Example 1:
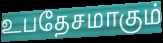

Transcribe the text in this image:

உபதேசமாகும்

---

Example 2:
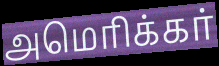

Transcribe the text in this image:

அமெரிக்கர்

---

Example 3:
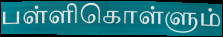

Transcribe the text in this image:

பள்ளிகொள்ளும்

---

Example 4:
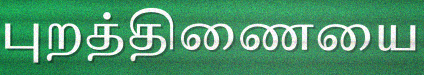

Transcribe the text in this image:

புறத்திணையை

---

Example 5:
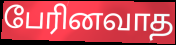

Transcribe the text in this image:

பேரினவாத